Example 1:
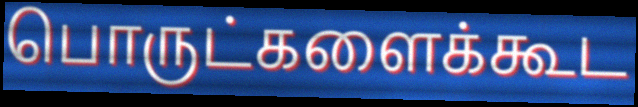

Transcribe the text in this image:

பொருட்களைக்கூட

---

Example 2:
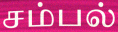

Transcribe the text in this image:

சம்பல்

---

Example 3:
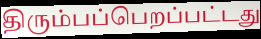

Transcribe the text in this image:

திரும்பப்பெறப்பட்டது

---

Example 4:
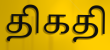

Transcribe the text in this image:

திகதி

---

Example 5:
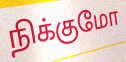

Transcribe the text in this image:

நிக்குமோ